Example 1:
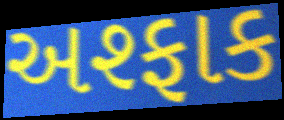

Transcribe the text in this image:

અશ્ફાક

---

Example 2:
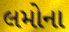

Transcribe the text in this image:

લમોના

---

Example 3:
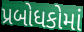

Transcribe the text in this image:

પ્રબોધકોમાં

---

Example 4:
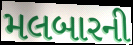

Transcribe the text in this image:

મલબારની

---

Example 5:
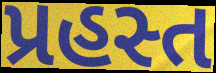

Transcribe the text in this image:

પ્રહસ્ત